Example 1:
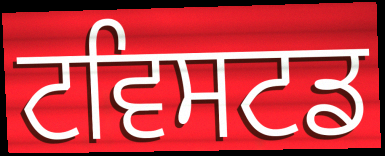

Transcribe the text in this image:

ਟਵਿਸਟਡ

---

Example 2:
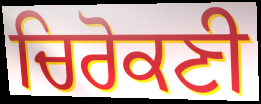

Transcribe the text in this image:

ਚਿਰੋਕਣੀ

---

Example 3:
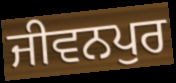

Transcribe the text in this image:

ਜੀਵਨਪੁਰ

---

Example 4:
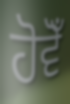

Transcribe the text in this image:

ਹੋਵੋਁ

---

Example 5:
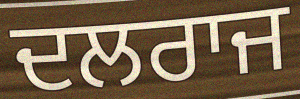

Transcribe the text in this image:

ਦਲਰਾਜ